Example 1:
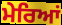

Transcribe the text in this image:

ਮੇਰਿਆਂ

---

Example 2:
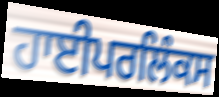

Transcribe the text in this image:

ਹਾਈਪਰਲਿੰਕਸ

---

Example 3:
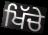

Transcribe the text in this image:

ਖਿੱਚੇ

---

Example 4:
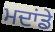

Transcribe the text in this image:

ਮਦਾਂਡੇ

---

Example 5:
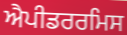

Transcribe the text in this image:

ਐਪੀਡਰਰਮਿਸ